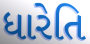
ધારેતિ